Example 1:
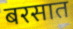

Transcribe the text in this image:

बरसात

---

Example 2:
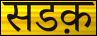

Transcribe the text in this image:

सडक़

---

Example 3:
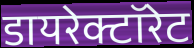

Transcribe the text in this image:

डायरेक्टॉरेट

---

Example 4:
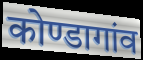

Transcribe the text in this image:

कोण्डागांव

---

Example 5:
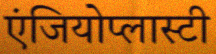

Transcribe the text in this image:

एंजियोप्लास्टी